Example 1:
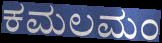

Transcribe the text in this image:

ಕಮಲಮಂ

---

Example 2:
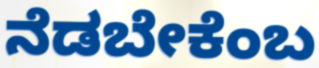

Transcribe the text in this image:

ನೆಡಬೇಕೆಂಬ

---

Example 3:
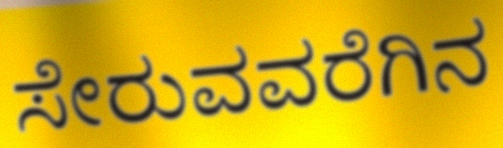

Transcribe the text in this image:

ಸೇರುವವರೆಗಿನ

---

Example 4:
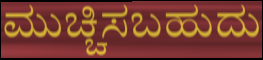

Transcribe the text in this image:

ಮುಚ್ಚಿಸಬಹುದು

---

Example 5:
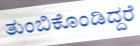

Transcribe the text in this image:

ತುಂಬಿಕೊಂಡಿದ್ದರೆ